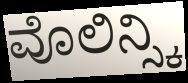
ವೊಲಿನ್ಸ್ಕಿ